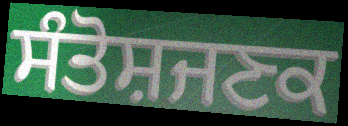
ਸੰਤੋਸ਼ਜਣਕ